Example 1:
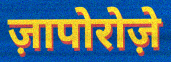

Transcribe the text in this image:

ज़ापोरोज़े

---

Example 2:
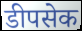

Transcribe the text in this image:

डीपसेक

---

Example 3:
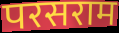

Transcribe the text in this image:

परसराम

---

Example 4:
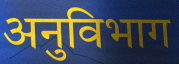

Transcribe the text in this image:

अनुविभाग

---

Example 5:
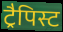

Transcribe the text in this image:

ट्रैपिस्ट